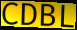
CDBL